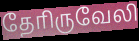
தேரிருவேலி